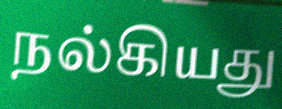
நல்கியது